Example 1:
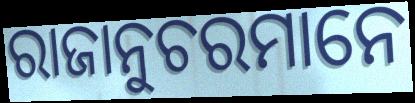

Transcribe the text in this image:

ରାଜାନୁଚରମାନେ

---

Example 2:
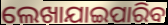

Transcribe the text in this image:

ଲେଖାଯାଇପାରିବ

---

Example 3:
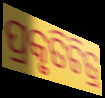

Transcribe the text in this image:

ପ୍ରକୃତିଚିତ୍ର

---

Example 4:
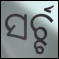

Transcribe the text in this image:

ସର୍ଚ୍ଚ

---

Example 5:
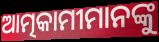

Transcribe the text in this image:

ଆତ୍ମକାମୀମାନଙ୍କୁ